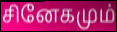
சினேகமும்